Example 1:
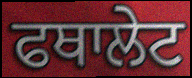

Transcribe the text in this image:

ਫਥਾਲੇਟ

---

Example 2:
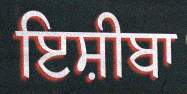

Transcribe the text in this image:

ਇਸ਼ੀਬਾ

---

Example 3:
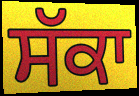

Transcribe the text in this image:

ਸੱਕਾ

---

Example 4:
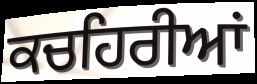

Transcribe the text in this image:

ਕਚਹਿਰੀਆਂ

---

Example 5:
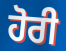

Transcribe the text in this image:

ਹੋਰੀ